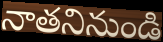
నాతనినుండి